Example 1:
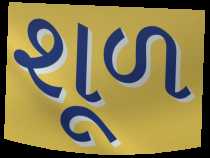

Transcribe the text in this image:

શૂળ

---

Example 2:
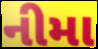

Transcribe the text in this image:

નીમા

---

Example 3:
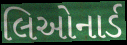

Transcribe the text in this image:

લિઓનાર્ડ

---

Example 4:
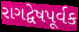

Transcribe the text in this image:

રાગદ્વેષપૂર્વક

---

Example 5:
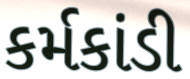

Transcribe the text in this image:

કર્મકાંડી